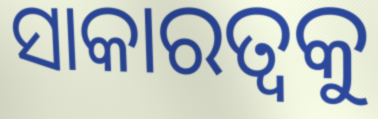
ସାକାରତ୍ଵକୁ